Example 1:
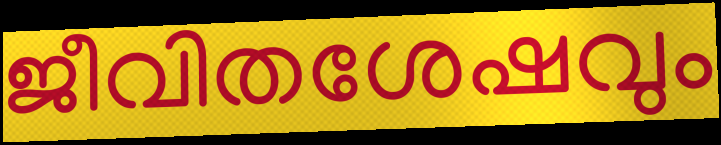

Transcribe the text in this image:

ജീവിതശേഷവും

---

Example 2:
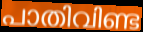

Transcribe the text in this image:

പാതിവിണ്ട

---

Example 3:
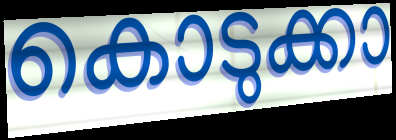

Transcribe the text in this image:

കൊടുക്കാ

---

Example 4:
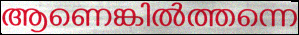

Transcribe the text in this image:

ആണെങ്കിൽത്തന്നെ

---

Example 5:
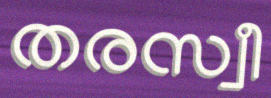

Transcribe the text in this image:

തരസ്വീ